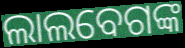
ଲାଲବେଗଙ୍କ